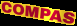
COMPAS